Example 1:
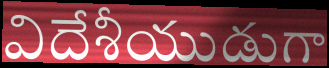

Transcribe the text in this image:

విదేశీయుడుగా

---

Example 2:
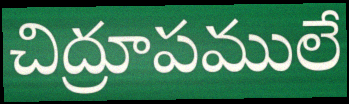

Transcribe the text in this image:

చిద్రూపములే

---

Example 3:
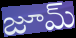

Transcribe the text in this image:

జూమ్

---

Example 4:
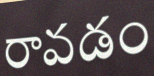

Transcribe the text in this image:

రావడం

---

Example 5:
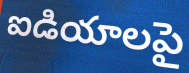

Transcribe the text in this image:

ఐడియాలపై